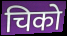
चिको